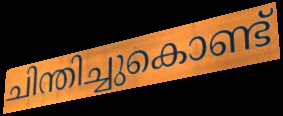
ചിന്തിച്ചുകൊണ്ട്